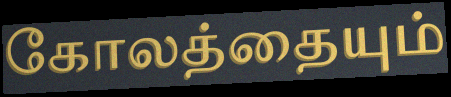
கோலத்தையும்